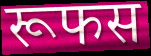
रूफस